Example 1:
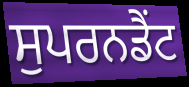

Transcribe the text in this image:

ਸੁਪਰਨਡੈਂਟ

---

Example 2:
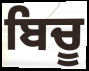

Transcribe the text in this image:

ਬਿਚੂ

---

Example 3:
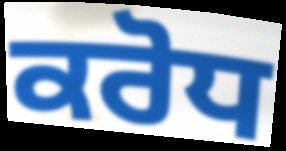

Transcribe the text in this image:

ਕਰੋਧ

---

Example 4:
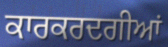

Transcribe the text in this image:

ਕਾਰਕਰਦਗੀਆਂ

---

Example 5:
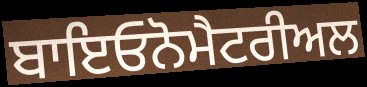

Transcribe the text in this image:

ਬਾਇਓਨੋਮੈਟਰੀਅਲ